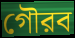
গৌরব